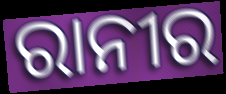
ରାନୀର